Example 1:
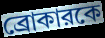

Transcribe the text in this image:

ব্রোকারকে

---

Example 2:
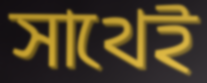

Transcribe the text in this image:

সাথেই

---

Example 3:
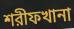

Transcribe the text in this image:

শরীফখানা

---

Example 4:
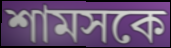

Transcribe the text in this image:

শামসকে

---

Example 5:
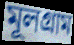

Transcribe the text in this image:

মূলগ্রাম